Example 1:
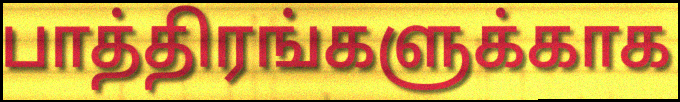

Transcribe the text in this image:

பாத்திரங்களுக்காக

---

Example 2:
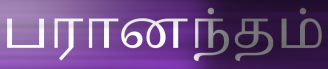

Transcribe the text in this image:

பரானந்தம்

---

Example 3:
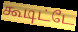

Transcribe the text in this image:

கூடிட்டே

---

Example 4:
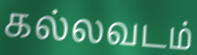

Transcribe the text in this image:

கல்லவடம்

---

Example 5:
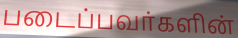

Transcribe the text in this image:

படைப்பவர்களின்